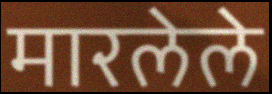
मारलेले